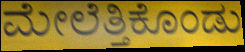
ಮೇಲೆತ್ತಿಕೊಂಡು